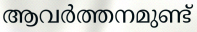
ആവർത്തനമുണ്ട്